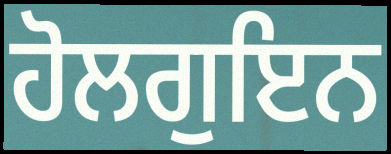
ਹੋਲਗੁਇਨ